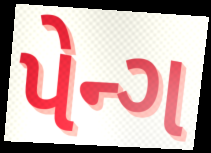
પેન્ગ